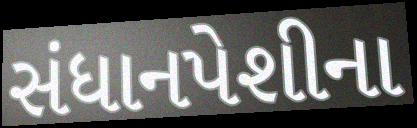
સંધાનપેશીના